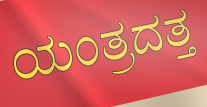
ಯಂತ್ರದತ್ತ